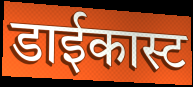
डाईकास्ट